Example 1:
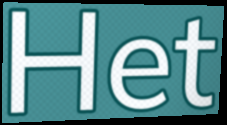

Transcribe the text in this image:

Het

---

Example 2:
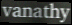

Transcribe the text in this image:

vanathy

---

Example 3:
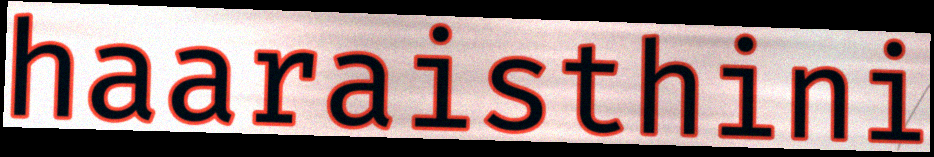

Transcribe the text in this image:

haaraisthini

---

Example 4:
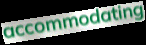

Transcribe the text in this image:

accommodating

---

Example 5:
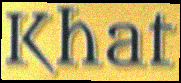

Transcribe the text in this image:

Khat